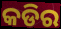
କଡିର